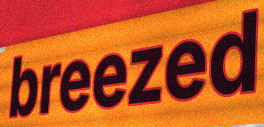
breezed